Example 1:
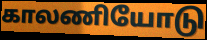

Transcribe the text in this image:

காலணியோடு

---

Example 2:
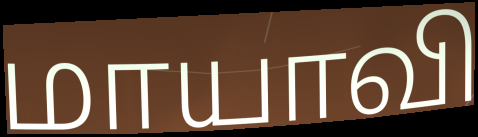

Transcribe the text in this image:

மாயாவி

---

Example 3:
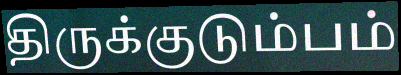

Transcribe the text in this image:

திருக்குடும்பம்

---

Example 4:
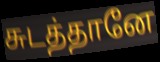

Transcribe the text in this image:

சுடத்தானே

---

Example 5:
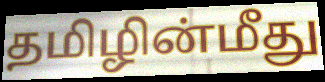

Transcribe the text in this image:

தமிழின்மீது